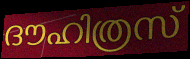
ദൗഹിത്രസ്